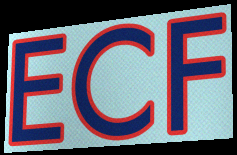
ECF